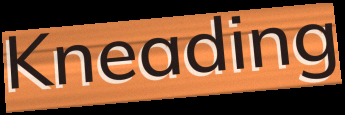
Kneading